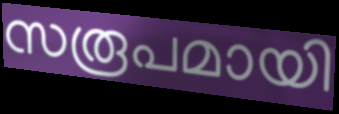
സരൂപമായി